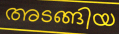
അടങ്ങിയ